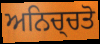
ਅਨਿਚ੍ਚਤੋ